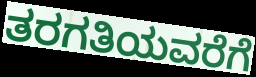
ತರಗತಿಯವರೆಗೆ